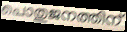
പൊതുജനത്തിന്